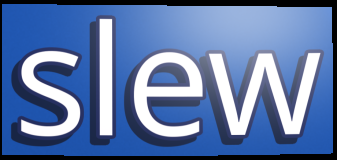
slew